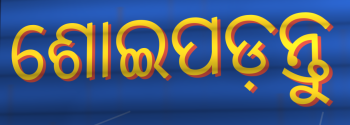
ଶୋଇପଡ଼ନ୍ତୁ